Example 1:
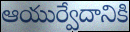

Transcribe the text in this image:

ఆయుర్వేదానికి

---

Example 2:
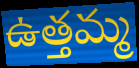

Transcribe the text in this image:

ఉత్తమ్మ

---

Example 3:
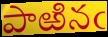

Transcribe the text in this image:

పాఱినఁ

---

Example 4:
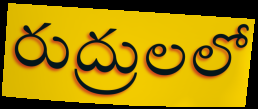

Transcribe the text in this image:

రుద్రులలో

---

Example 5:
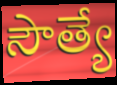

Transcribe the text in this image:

సౌత్యే